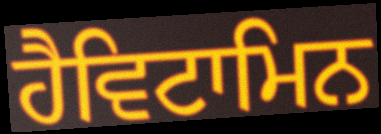
ਹੈਵਿਟਾਮਿਨ